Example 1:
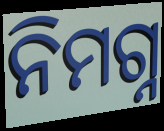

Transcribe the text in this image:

ନିମଗ୍ନ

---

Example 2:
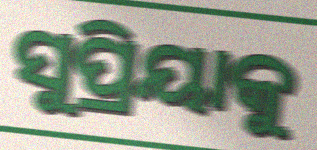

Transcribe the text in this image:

ସୁପ୍ରିୟାକୁ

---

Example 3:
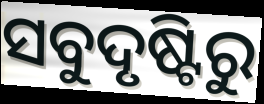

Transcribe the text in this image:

ସବୁଦୃଷ୍ଟିରୁ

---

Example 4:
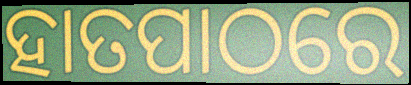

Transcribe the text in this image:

ହାତପାଠରେ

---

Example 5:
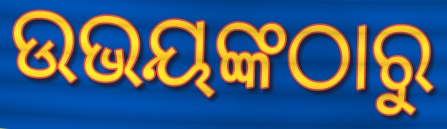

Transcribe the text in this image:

ଉଭୟଙ୍କଠାରୁ